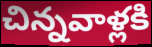
చిన్నవాళ్లకి